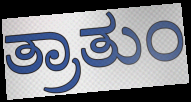
ತ್ರಾತುಂ